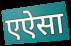
एऐसा